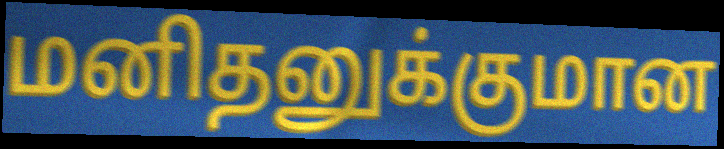
மனிதனுக்குமான